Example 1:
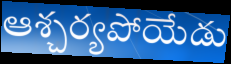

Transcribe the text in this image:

ఆశ్చర్యపోయేడు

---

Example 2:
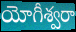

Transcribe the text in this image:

యోగీశ్వరా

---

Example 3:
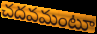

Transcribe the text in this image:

చదవమంటూ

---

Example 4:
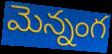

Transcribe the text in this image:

మెన్నంగ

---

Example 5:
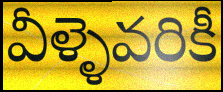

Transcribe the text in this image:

వీళ్ళెవరికీ